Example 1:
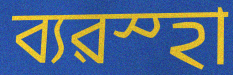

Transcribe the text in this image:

ব্যৱস্হা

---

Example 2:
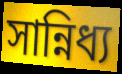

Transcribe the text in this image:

সান্নিধ্য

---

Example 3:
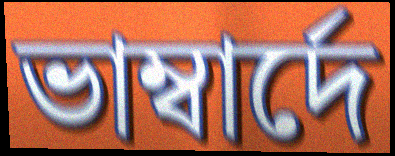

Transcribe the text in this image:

ভাম্বাৰ্দে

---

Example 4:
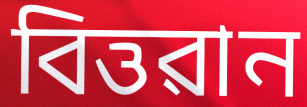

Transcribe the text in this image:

বিত্তৱান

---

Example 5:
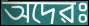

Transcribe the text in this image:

অদেৱঃ